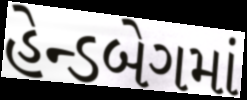
હેન્ડબેગમાં